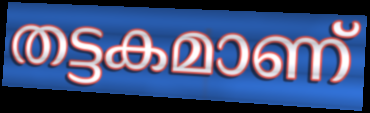
തട്ടകമാണ്